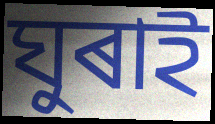
ঘুৰাই